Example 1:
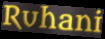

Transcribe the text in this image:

Ruhani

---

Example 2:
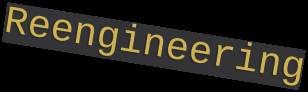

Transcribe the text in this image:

Reengineering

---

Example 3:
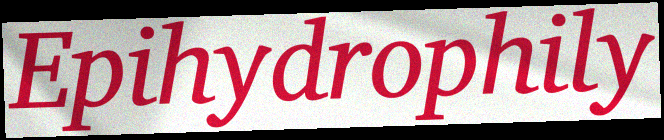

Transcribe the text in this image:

Epihydrophily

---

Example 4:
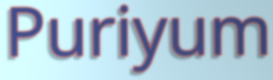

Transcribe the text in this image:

Puriyum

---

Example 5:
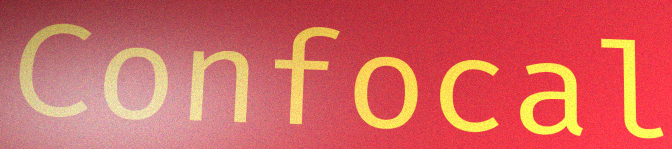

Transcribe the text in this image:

Confocal